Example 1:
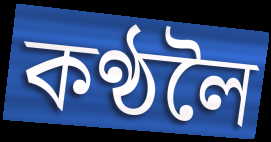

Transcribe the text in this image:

কণ্ঠলৈ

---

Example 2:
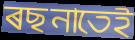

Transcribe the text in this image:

ৰছনাতেই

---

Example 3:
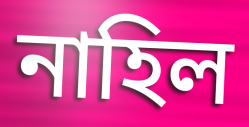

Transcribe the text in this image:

নাহিল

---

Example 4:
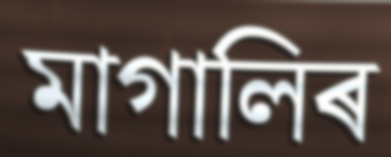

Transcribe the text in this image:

মাগালিৰ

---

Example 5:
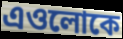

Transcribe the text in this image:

এওলোকে